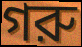
গরু